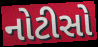
નોટીસો